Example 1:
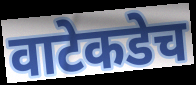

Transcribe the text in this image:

वाटेकडेच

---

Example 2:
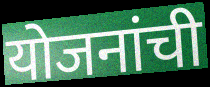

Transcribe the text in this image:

योजनांची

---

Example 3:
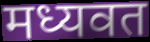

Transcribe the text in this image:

मध्यवत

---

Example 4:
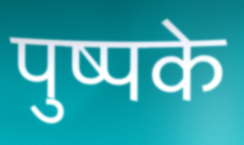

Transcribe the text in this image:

पुष्पके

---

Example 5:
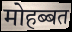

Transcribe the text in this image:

मोहब्बत